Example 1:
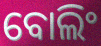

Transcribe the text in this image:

ବୋଲିଂ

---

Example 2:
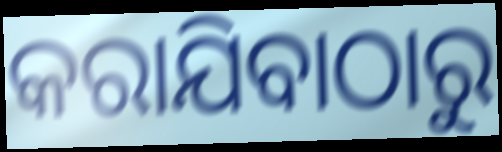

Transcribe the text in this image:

କରାଯିବାଠାରୁ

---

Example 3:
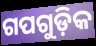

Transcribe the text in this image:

ଗପଗୁଡ଼ିକ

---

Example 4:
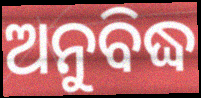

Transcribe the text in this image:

ଅନୁବିଦ୍ଧ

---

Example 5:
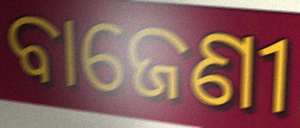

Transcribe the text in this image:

ବାଜେଣୀ